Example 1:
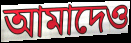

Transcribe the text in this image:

আমাদেও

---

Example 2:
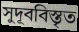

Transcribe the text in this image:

সুদূববিস্তৃত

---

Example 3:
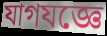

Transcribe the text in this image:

যাগযজ্ঞে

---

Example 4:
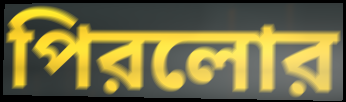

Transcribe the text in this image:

পিরলোর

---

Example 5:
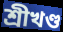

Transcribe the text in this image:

শ্রীখণ্ড